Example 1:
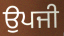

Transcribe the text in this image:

ਉਪਜੀ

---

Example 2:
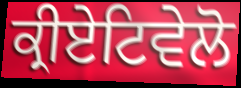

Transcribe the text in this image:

ਕ੍ਰੀਏਟਿਵੇਲੋ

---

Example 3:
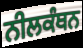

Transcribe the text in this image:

ਨੀਲਕੰਥਨ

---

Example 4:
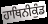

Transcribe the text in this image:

ਹਾਥਿਨੀਕੁੰਡ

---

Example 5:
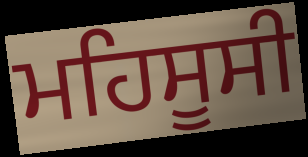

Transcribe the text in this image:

ਮਹਿਸੂਸੀ